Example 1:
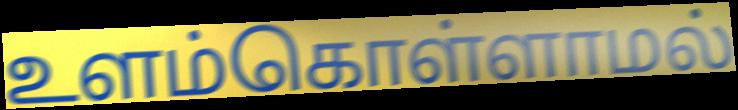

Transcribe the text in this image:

உளம்கொள்ளாமல்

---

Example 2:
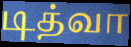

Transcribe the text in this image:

டித்வா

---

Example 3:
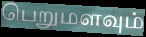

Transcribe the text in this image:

பெறுமளவும்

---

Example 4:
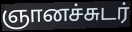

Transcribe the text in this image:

ஞானச்சுடர்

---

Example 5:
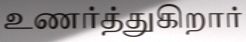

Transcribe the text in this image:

உணர்த்துகிறார்